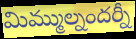
మిమ్ముల్నందర్నీ